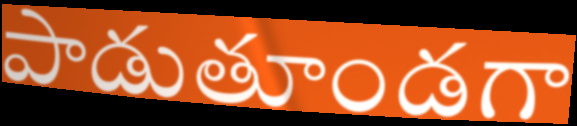
పాడుతూండగా